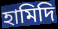
হামিদি